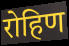
रोहिण